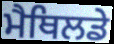
ਮੈਥਿਲਡੇ